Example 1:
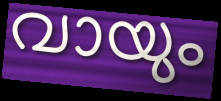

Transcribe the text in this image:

വായും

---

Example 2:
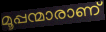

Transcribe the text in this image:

മൂപ്പന്മാരാണ്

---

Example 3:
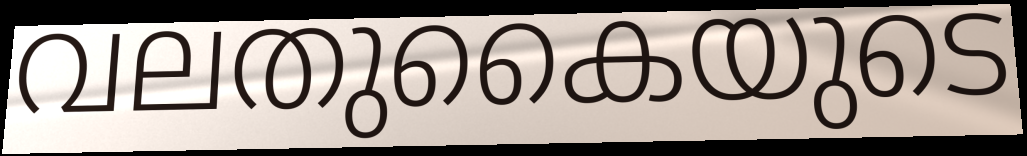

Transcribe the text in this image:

വലതുകൈയുടെ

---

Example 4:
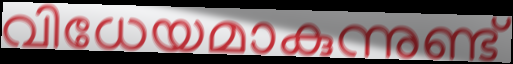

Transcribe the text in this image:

വിധേയമാകുന്നുണ്ട്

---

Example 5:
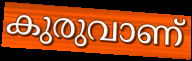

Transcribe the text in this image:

കുരുവാണ്